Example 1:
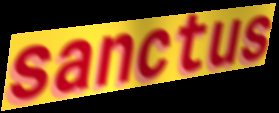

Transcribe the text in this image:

sanctus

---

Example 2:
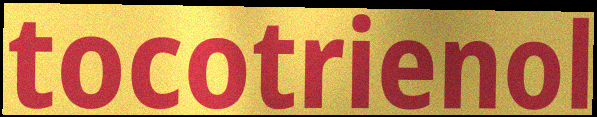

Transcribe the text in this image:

tocotrienol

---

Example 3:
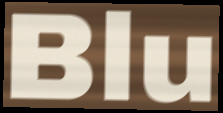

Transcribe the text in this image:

Blu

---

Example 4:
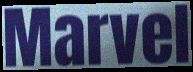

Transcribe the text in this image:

Marvel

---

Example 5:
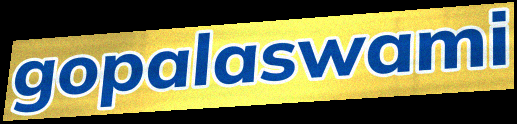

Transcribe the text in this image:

gopalaswami